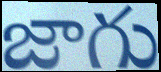
జాగు